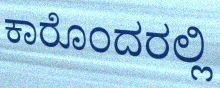
ಕಾರೊಂದರಲ್ಲಿ